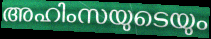
അഹിംസയുടെയും